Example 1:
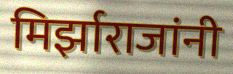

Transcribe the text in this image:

मिर्झाराजांनी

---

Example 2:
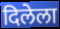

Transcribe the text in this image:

दिलेला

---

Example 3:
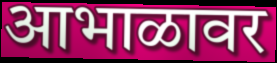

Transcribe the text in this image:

आभाळावर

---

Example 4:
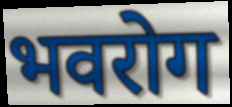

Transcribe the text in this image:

भवरोग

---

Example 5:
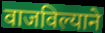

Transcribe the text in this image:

वाजविल्याने